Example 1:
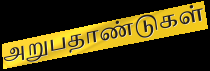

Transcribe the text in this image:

அறுபதாண்டுகள்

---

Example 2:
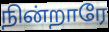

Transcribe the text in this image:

நின்றாரே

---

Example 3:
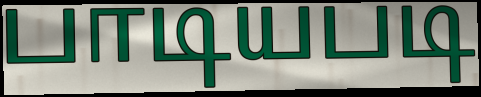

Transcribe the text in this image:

பாடியபடி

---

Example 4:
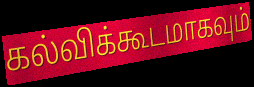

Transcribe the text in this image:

கல்விக்கூடமாகவும்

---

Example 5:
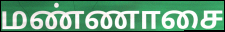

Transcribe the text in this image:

மண்ணாசை